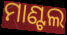
ମାଣ୍ଟଲ